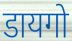
डायगो